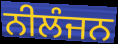
ਨੀਲੰਜਨ